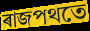
ৰাজপথতে